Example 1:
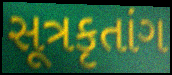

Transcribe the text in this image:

સૂત્રકૃતાંગ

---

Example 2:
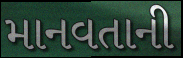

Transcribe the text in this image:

માનવતાની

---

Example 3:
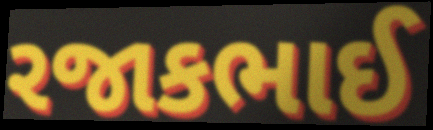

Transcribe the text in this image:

રજાકભાઈ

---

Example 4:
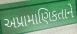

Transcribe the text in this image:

અપ્રામાણિકતાને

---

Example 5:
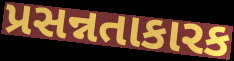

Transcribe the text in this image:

પ્રસન્નતાકારક